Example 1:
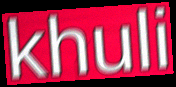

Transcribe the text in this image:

khuli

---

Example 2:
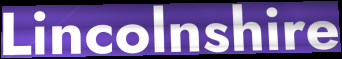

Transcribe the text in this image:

Lincolnshire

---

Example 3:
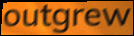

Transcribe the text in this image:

outgrew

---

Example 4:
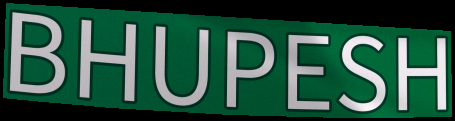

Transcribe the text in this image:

BHUPESH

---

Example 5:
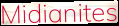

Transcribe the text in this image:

Midianites